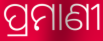
ପ୍ରମାଣୀ